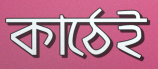
কাঠেই